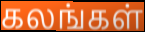
கலங்கள்